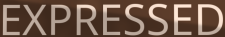
EXPRESSED